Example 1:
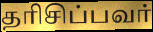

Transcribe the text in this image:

தரிசிப்பவர்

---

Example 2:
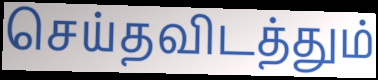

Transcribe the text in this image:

செய்தவிடத்தும்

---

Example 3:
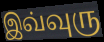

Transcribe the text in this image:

இவ்வுரு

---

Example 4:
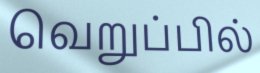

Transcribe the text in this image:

வெறுப்பில்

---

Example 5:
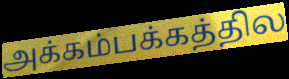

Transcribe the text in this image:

அக்கம்பக்கத்தில